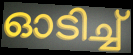
ഓടിച്ച്